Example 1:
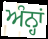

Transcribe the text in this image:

ਅੰਨ੍ਹਾਂ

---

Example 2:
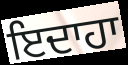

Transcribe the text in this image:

ਇਦਾਹਾ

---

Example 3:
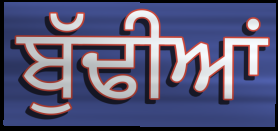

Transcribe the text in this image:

ਬੁੱਢੀਆਂ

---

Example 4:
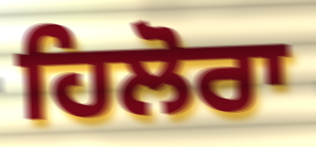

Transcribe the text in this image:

ਹਿਲੋਰਾ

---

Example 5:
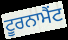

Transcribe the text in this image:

ਟੂਰਨਾਮੈਂਟ